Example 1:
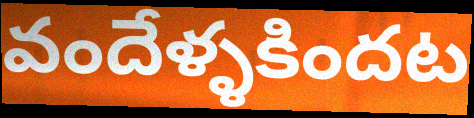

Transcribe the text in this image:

వందేళ్ళకిందట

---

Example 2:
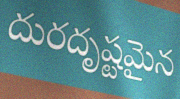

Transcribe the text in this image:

దురదృష్టమైన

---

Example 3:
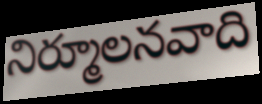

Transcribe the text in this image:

నిర్మూలనవాది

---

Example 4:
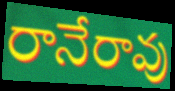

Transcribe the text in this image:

రానేరావు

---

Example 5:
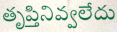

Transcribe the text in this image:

తృప్తినివ్వలేదు